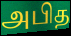
அபித